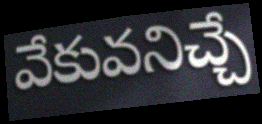
వేకువనిచ్చే